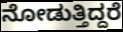
ನೋಡುತ್ತಿದ್ದರೆ